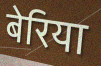
बेरिया